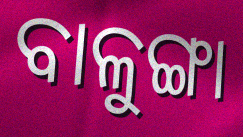
ବାଳୁଙ୍ଗା